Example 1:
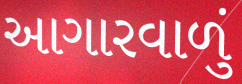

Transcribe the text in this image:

આગારવાળું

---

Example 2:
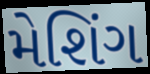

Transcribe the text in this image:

મેશિંગ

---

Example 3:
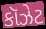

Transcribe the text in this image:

કૉઝેટ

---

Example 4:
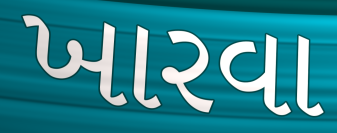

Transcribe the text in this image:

ખારવા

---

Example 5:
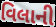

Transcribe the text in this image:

વિલાની